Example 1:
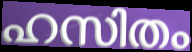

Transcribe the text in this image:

ഹസിതം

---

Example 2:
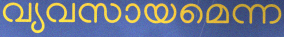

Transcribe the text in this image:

വ്യവസായമെന്ന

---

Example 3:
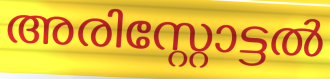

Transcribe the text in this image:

അരിസ്റ്റോട്ടൽ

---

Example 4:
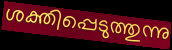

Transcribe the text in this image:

ശക്തിപ്പെടുത്തുന്നു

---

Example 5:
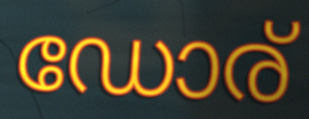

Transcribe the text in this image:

ഡോര്